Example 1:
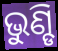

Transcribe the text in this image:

ଭୁଣ୍ଡି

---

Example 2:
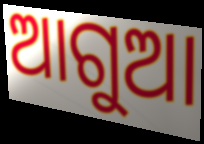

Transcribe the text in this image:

ଆଗୁଆ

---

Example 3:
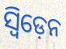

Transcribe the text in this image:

ସ୍ବିଡ଼େନ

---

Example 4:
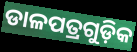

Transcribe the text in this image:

ଡାଳପତ୍ରଗୁଡ଼ିକ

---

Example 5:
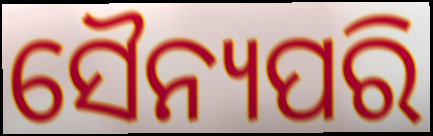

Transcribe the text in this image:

ସୈନ୍ୟପରି